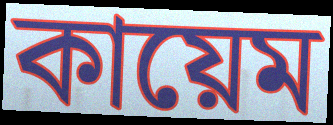
কায়েম